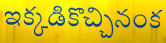
ఇక్కడికొచ్చినంక